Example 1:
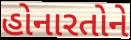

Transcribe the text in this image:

હોનારતોને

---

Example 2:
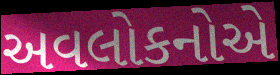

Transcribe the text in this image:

અવલોકનોએ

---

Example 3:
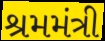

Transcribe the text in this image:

શ્રમમંત્રી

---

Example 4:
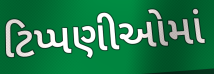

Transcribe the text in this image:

ટિપ્પણીઓમાં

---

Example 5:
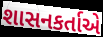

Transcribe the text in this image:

શાસનકર્તાએ